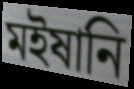
মইষানি